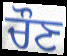
ਚੌਣ